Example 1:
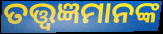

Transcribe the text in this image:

ତତ୍ତ୍ୱଜ୍ଞମାନଙ୍କ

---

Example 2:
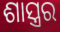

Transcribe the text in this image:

ଶାସ୍ତ୍ରର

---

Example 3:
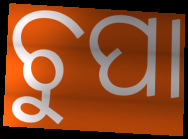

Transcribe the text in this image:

ଚୁପା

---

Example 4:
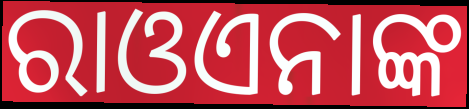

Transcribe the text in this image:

ରାଓଏନାଙ୍କ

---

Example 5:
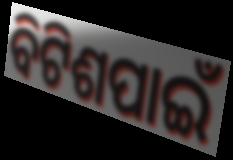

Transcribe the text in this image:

ବିଟିଶପାଇଁ